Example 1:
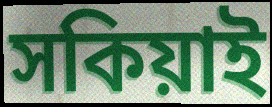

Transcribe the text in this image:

সকিয়াই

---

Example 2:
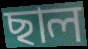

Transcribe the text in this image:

ছাল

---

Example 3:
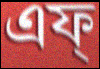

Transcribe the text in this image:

এফ্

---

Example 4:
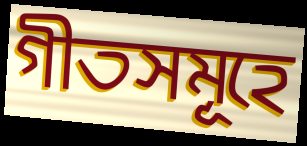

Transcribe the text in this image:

গীতসমূহে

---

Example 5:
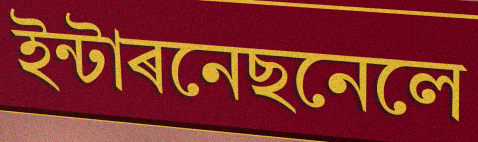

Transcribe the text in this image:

ইন্টাৰনেছনেলে